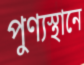
পুণ্যস্থানে